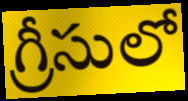
గ్రీసులో